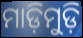
ମାଡ଼ିମୁଡ଼ି